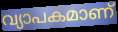
വ്യാപകമാണ്